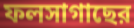
ফলসাগাছের